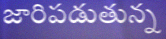
జారిపడుతున్న